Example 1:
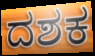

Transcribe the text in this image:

ದಶಕ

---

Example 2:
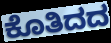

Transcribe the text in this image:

ಕೊತಿದದ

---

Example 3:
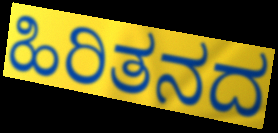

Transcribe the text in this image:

ಹಿರಿತನದ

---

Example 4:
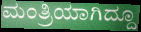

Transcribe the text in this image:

ಮಂತ್ರಿಯಾಗಿದ್ದೂ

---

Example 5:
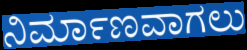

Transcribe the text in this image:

ನಿರ್ಮಾಣವಾಗಲು